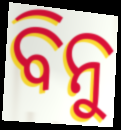
ବିନୁ